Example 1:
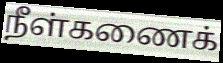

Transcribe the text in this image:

நீள்கணைக்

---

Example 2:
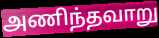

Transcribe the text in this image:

அணிந்தவாறு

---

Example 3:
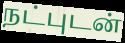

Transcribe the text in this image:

நட்புடன்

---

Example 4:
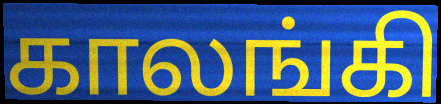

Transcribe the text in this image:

காலங்கி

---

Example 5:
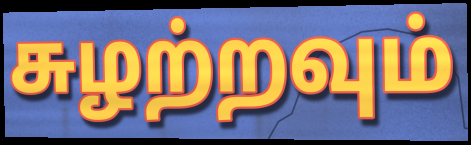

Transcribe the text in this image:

சுழற்றவும்